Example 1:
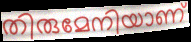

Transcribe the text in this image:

തിരുമേനിയാണ്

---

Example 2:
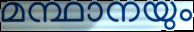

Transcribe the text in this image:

മന്ഥാനയും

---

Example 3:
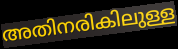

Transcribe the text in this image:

അതിനരികിലുള്ള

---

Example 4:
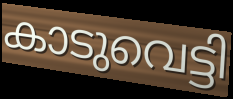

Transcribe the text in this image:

കാടുവെട്ടി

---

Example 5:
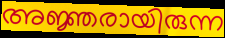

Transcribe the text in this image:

അജ്ഞരായിരുന്ന